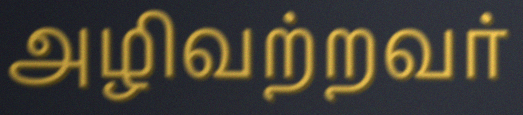
அழிவற்றவர்